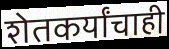
शेतकर्यांचाही